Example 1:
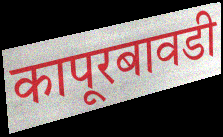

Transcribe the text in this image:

कापूरबावडी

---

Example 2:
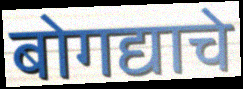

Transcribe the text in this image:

बोगद्याचे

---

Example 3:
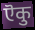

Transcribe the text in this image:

ऎकु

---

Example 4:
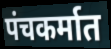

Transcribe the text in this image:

पंचकर्मात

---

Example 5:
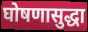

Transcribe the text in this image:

घोषणासुद्धा